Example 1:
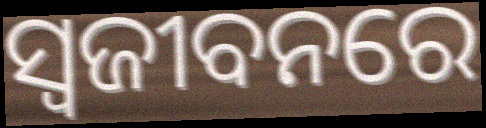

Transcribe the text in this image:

ସ୍ଵଜୀବନରେ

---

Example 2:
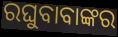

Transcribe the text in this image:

ରଘୁବାବାଙ୍କର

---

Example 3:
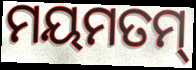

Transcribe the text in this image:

ମୟମତମ୍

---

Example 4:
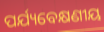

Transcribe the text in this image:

ପର୍ଯ୍ୟବେକ୍ଷଣୀୟ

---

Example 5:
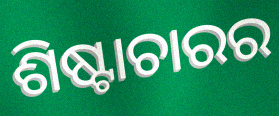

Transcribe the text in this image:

ଶିଷ୍ଟାଚାରର